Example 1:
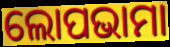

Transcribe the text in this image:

ଲୋପଭାମା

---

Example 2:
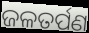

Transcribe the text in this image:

ଜଳତର୍ପଣ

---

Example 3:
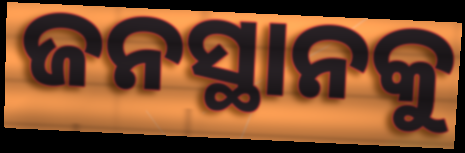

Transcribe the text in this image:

ଜନସ୍ଥାନକୁ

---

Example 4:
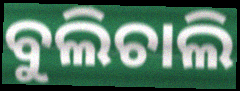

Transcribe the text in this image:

ବୁଲିଚାଲି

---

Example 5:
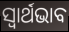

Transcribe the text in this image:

ସ୍ଵାର୍ଥଭାବ